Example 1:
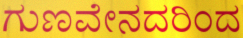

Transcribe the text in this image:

ಗುಣವೇನದರಿಂದ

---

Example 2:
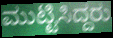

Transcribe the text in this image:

ಮುಟ್ಟಿಸಿದ್ದರು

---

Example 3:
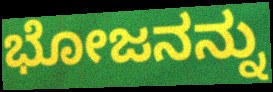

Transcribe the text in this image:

ಭೋಜನನ್ನು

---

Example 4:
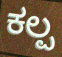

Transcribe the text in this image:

ಕಲ್ಪ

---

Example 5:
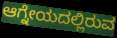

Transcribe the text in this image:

ಆಗ್ನೇಯದಲ್ಲಿರುವ